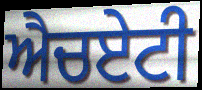
ਐਚਏਟੀ